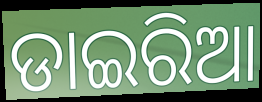
ଡାଇରିଆ